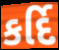
કર્દિ